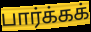
பார்க்கக்